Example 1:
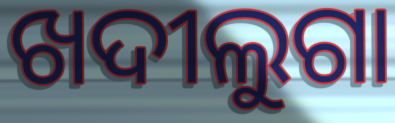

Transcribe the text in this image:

ଖଦୀଲୁଗା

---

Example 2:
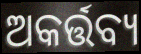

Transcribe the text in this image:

ଅକର୍ତ୍ତବ୍ୟ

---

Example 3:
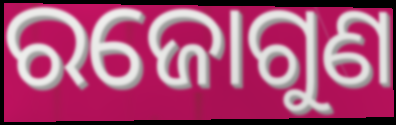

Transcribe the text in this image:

ରଜୋଗୁଣ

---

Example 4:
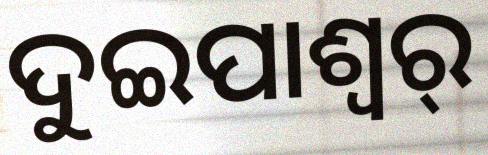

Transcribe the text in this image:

ଦୁଇପାଶ୍ୱର୍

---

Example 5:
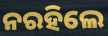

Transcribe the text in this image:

ନରହିଲେ